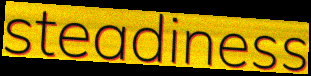
steadiness